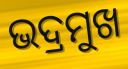
ଭଦ୍ରମୁଖ